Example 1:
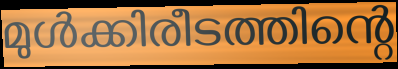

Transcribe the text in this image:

മുൾക്കിരീടത്തിന്റെ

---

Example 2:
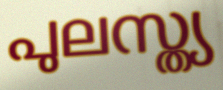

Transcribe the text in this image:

പുലസ്ത്യ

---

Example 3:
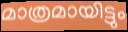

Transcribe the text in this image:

മാത്രമായിട്ടും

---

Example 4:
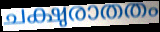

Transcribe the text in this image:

ചക്ഷുരാതതം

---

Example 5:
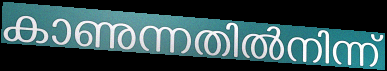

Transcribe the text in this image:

കാണുന്നതിൽനിന്ന്